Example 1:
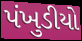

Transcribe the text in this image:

પંખુડીયો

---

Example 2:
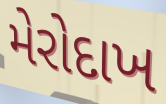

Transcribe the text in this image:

મેરોદાખ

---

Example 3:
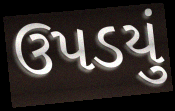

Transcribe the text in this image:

ઉપડયું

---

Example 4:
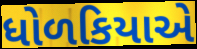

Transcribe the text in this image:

ધોળકિયાએ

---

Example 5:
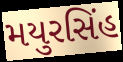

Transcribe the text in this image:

મયુરસિંહ